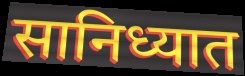
सानिध्यात